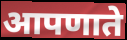
आपणाते